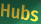
Hubs